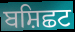
ਬਸ਼ਿਛਟ